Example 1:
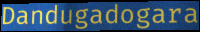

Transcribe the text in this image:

Dandugadogara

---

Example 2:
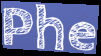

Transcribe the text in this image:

Phe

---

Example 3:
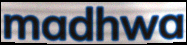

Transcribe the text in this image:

madhwa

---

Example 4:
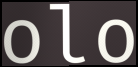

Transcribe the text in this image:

olo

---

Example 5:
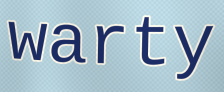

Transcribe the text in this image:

warty